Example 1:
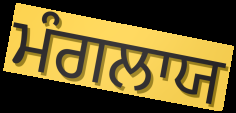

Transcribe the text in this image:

ਮੰਗਲਾਯ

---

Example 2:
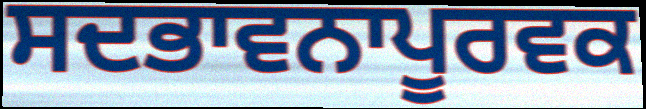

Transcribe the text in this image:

ਸਦਭਾਵਨਾਪੂਰਵਕ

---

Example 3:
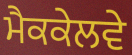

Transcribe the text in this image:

ਮੈਕਕੇਲਵੇ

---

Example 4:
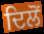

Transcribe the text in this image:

ਦਿਲੋਂ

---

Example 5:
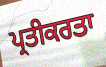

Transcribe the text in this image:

ਪ੍ਰਤੀਕਰਤਾ